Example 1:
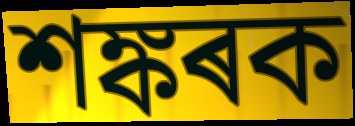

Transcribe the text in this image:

শঙ্কৰক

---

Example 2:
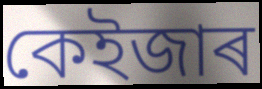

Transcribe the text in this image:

কেইজাৰ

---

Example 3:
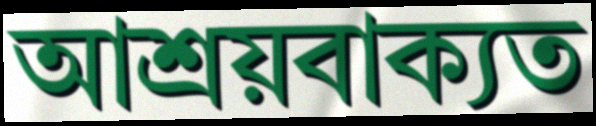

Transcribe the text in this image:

আশ্ৰয়বাক্য়ত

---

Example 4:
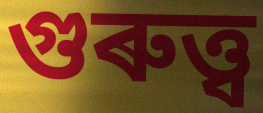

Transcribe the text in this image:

গুৰুত্ত্ব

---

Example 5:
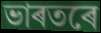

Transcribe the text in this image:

ভাৰতৰে